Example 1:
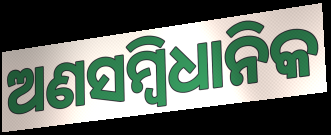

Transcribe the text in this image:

ଅଣସମ୍ବିଧାନିକ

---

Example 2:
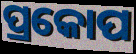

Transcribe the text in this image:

ପ୍ରକୋପ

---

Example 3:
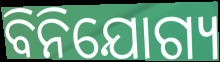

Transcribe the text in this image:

ବିନିଯୋଗ୍ୟ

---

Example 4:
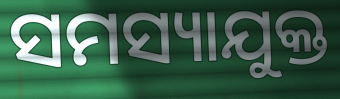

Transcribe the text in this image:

ସମସ୍ୟାଯୁକ୍ତ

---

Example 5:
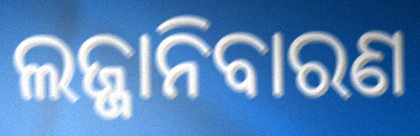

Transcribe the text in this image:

ଲଜ୍ଜାନିବାରଣ